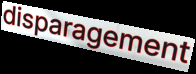
disparagement